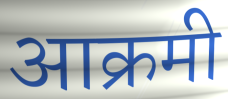
आक्रमी